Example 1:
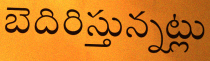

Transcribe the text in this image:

బెదిరిస్తున్నట్లు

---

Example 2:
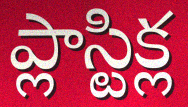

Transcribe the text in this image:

ప్లాస్టిక్ల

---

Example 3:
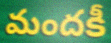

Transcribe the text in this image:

మందకీ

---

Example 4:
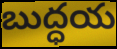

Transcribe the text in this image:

బుద్ధయ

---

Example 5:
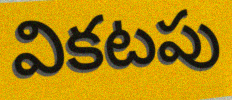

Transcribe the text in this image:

వికటపు